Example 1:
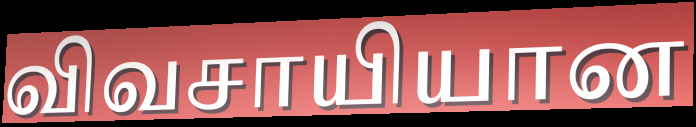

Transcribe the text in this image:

விவசாயியான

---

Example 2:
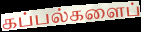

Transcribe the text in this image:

கப்பல்களைப்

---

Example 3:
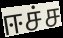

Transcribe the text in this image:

ஈச்ச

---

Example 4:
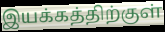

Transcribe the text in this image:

இயக்கத்திற்குள்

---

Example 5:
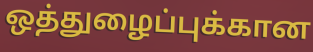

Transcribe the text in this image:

ஒத்துழைப்புக்கான